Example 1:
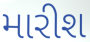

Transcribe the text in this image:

મારીશ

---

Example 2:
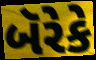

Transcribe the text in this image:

બૅરેકે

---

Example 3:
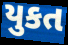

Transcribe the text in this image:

યુકત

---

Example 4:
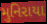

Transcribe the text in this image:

મુનિરાયા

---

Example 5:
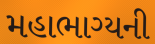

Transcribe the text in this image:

મહાભાગ્યની